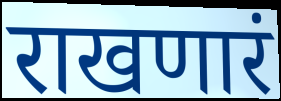
राखणारं